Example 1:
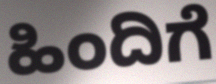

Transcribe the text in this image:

ಹಿಂದಿಗೆ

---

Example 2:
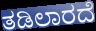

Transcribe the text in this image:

ತಡಿಲಾರದೆ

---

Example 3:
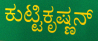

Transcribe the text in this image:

ಕುಟ್ಟಿಕೃಷ್ಣನ್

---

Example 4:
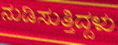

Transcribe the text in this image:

ನುಡಿಸುತ್ತಿದ್ದಳು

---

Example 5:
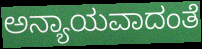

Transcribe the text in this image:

ಅನ್ಯಾಯವಾದಂತೆ